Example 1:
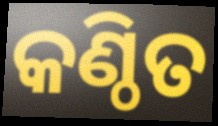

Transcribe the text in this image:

କଣ୍ଠିତ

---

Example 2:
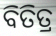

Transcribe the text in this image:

ବିତିତ୍ର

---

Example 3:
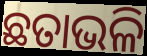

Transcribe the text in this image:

ଛତାଭଳି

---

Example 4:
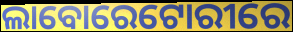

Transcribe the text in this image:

ଲାବୋରେଟୋରୀରେ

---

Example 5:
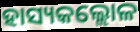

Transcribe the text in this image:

ହାସ୍ୟକଲ୍ଲୋଳ